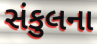
સંકુલના